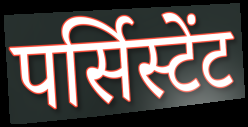
पर्सिस्टेंट